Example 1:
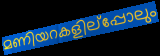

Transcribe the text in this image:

മണിയറകളില്പ്പോലും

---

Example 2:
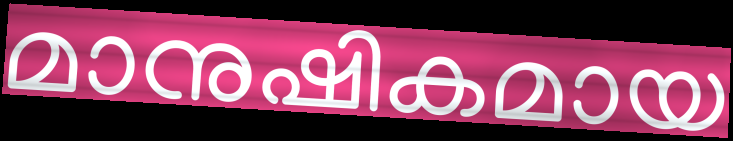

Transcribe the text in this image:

മാനുഷികമായ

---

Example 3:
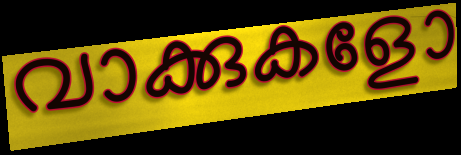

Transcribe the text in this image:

വാക്കുകളോ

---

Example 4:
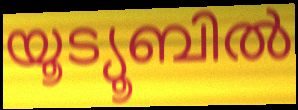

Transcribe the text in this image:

യൂട്യൂബിൽ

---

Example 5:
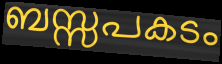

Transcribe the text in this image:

ബസ്സപകടം